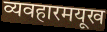
व्यवहारमयूख